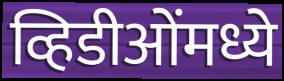
व्हिडीओंमध्ये